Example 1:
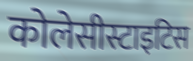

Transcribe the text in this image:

कोलेसीस्टाइटिस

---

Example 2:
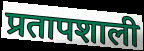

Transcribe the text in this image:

प्रतापशाली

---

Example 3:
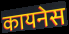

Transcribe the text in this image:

कायनेस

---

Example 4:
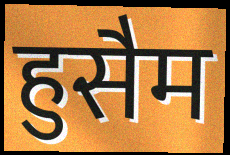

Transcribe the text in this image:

हुसैम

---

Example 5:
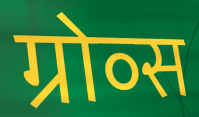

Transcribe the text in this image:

ग्रोव्स